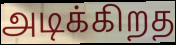
அடிக்கிறத